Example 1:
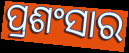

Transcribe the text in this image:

ପ୍ରଶଂସାର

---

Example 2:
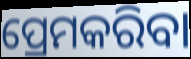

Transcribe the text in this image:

ପ୍ରେମକରିବା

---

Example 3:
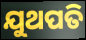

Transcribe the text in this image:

ଯୁଥପତି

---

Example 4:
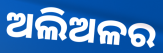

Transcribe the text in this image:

ଅଲିଅଳର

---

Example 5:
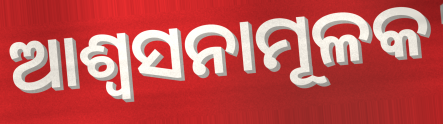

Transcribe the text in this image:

ଆଶ୍ୱସନାମୂଳକ